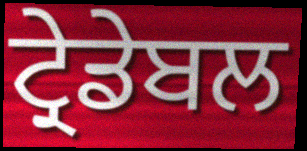
ਟ੍ਰੇਡੇਬਲ